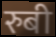
रुबी